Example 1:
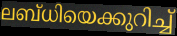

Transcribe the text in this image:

ലബ്ധിയെക്കുറിച്ച്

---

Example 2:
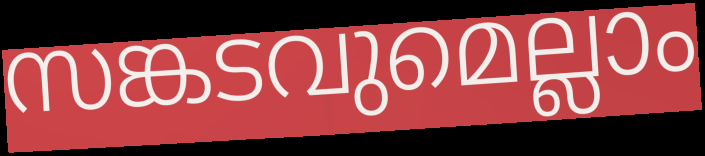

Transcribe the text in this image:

സങ്കടവുമെല്ലാം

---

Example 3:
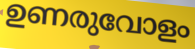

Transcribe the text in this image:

ഉണരുവോളം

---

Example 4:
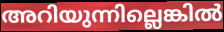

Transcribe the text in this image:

അറിയുന്നില്ലെങ്കിൽ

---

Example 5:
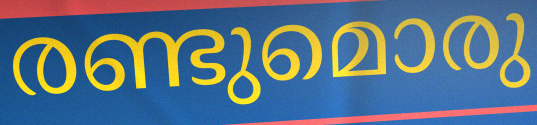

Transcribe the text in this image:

രണ്ടുമൊരു